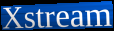
Xstream